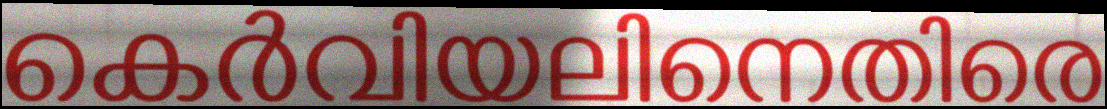
കെർവിയലിനെതിരെ